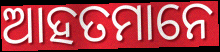
ଆହତମାନେ